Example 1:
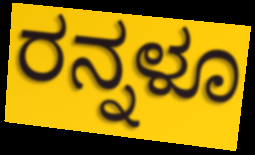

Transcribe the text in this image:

ರನ್ನಳೂ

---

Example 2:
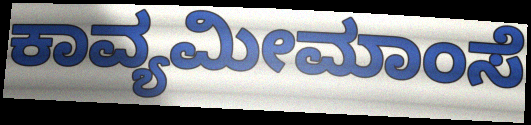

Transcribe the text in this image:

ಕಾವ್ಯಮೀಮಾಂಸೆ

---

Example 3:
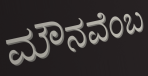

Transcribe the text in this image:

ಮೌನವೆಂಬ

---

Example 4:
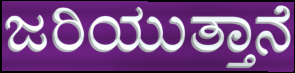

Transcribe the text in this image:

ಜರಿಯುತ್ತಾನೆ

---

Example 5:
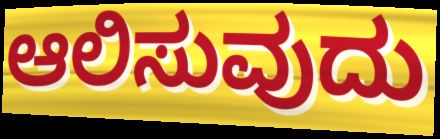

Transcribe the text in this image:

ಆಲಿಸುವುದು